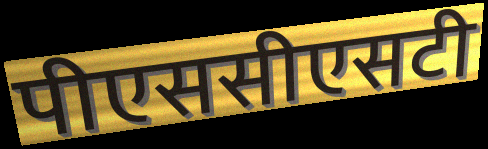
पीएससीएसटी